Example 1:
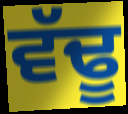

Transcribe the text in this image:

ਵੱਢੂ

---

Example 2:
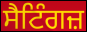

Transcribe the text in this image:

ਸੈਟਿੰਗਜ਼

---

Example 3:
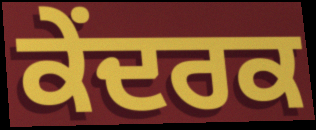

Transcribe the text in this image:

ਕੇਂਦਰਕ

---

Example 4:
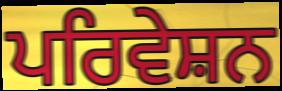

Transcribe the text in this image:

ਪਰਿਵੇਸ਼ਨ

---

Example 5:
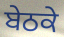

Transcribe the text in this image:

ਬੇਠਕੇ